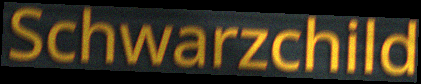
Schwarzchild